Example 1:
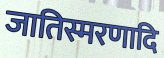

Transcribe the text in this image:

जातिस्मरणादि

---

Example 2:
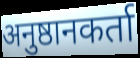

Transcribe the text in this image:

अनुष्ठानकर्ता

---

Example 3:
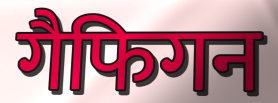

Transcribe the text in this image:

गैफिगन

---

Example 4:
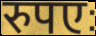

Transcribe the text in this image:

रुपएः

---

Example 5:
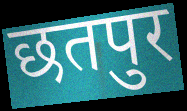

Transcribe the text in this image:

छतपुर